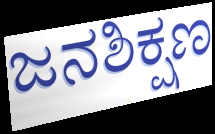
ಜನಶಿಕ್ಷಣ